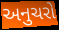
અનુચરો